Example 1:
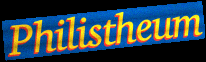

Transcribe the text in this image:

Philistheum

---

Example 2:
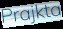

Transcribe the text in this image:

Prajkta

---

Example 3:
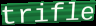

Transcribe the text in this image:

trifle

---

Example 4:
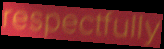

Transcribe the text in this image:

respectfully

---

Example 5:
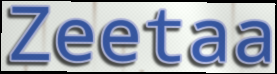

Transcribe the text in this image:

Zeetaa